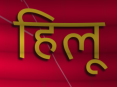
हिलू